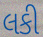
લકી